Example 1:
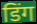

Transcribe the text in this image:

डिंग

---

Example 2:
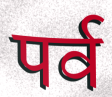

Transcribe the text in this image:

पर्व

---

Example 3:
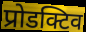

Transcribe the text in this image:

प्रोडक्टिव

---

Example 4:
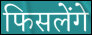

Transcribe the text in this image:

फिसलेंगे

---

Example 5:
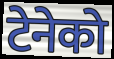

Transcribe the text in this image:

टेनेको